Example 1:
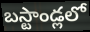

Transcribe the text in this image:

బస్టాండ్లలో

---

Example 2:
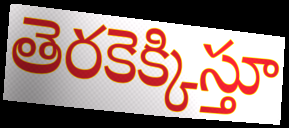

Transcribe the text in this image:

తెరకెక్కిస్తూ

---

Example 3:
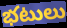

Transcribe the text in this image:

భటులు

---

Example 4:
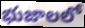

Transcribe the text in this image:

భుజాలలో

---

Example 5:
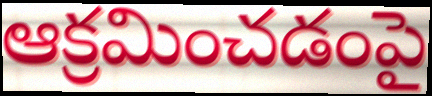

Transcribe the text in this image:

ఆక్రమించడంపై